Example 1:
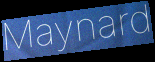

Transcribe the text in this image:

Maynard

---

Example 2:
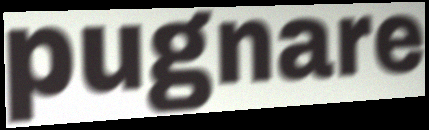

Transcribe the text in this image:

pugnare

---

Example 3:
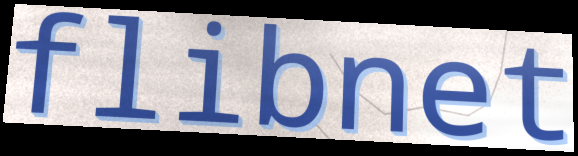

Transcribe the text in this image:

flibnet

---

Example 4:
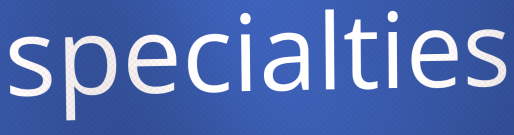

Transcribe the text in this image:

specialties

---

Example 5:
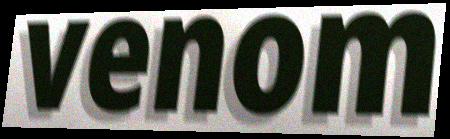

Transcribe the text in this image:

venom